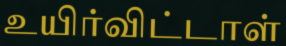
உயிர்விட்டாள்